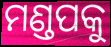
ମଣ୍ଡପକୁ